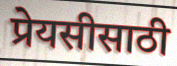
प्रेयसीसाठी